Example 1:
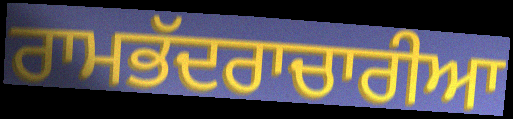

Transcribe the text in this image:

ਰਾਮਭੱਦਰਾਚਾਰੀਆ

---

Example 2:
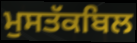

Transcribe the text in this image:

ਮੁਸਤੱਕਬਿਲ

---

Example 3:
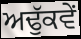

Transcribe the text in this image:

ਅਢੁੱਕਵੇਂ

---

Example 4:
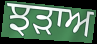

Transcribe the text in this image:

ਝੜਾਅ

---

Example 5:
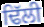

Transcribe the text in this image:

ਢਿੱਲੀ